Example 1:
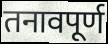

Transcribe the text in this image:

तनावपूर्ण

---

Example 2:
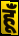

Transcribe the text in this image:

हूंँ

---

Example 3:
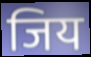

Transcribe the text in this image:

जिय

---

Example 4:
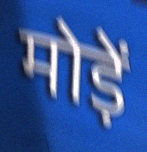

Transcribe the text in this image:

मोड़ें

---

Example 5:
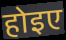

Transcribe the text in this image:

होइए